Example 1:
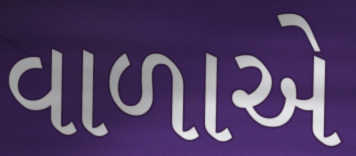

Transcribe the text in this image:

વાળાએ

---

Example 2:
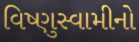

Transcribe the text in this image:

વિષ્ણુસ્વામીનો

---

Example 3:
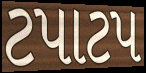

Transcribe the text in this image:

ટપાટપ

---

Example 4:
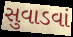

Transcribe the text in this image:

સુવાડવાં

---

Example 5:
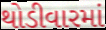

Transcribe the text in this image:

થોડીવારમાં